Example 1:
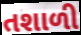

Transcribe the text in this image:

તશાળી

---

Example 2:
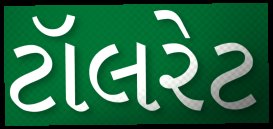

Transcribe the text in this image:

ટૉલરેટ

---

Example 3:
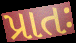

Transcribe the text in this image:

પ્રાતઃ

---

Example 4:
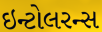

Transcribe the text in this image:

ઇન્ટોલરન્સ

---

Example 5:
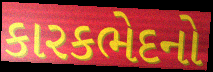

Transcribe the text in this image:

કારકભેદનો